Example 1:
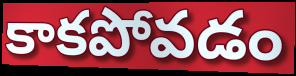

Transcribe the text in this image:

కాకపోవడం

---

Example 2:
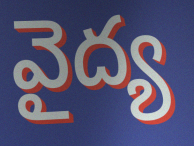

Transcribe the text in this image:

వైద్య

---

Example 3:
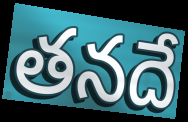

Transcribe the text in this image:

తనదే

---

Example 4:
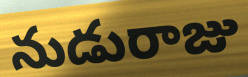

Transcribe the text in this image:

నుడురాజు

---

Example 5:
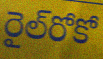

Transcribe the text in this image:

రైల్‌రోకో